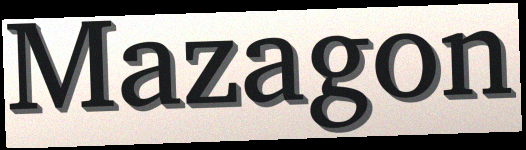
Mazagon